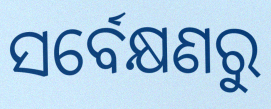
ସର୍ବେକ୍ଷଣରୁ